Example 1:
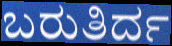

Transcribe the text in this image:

ಬರುತಿರ್ದ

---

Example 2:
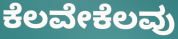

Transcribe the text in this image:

ಕೆಲವೇಕೆಲವು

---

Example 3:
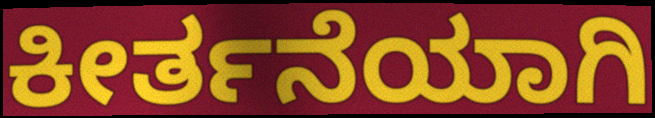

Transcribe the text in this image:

ಕೀರ್ತನೆಯಾಗಿ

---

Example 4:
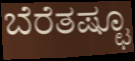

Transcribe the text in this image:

ಬೆರೆತಷ್ಟೂ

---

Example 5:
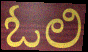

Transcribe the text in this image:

ಓಲಿ